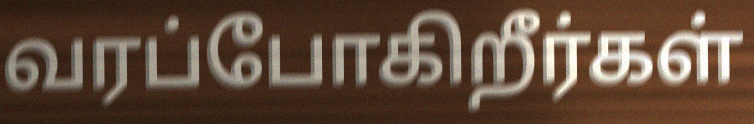
வரப்போகிறீர்கள்